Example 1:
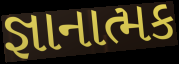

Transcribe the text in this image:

જ્ઞાનાત્મક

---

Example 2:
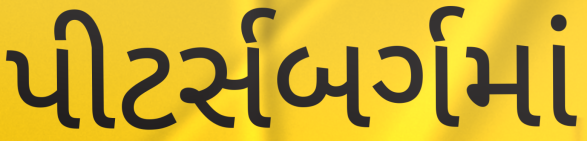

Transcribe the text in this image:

પીટર્સબર્ગમાં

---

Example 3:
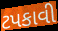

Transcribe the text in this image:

ટપકાવી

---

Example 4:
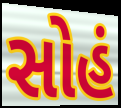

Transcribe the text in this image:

સોહં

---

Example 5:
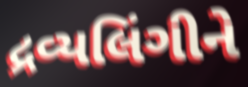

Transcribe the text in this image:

દ્રવ્યલિંગીને